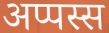
अप्पस्स